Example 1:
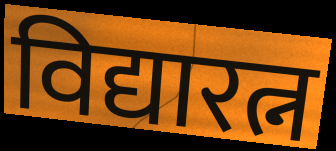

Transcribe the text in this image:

विद्यारत्न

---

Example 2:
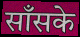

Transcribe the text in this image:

साँसके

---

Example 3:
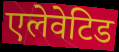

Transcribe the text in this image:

एलेवेटिड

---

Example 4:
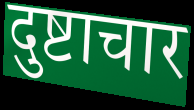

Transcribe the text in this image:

दुष्टाचार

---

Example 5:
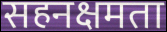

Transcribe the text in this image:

सहनक्षमता